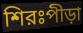
শিরঃপীড়া